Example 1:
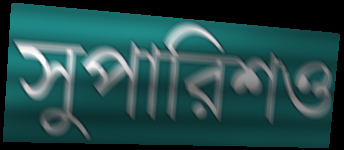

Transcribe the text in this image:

সুপারিশও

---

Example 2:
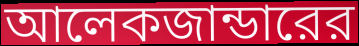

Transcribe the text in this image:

আলেকজান্ডারের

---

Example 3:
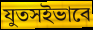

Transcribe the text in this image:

যুতসইভাবে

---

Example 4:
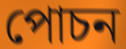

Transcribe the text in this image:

পোচন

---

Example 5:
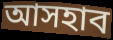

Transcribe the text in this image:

আসহাব